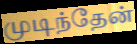
முடிந்தேன்